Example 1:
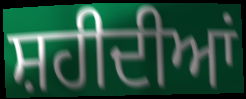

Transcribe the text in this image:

ਸ਼ਹੀਦੀਆਂ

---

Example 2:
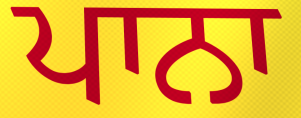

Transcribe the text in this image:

ਪਾਨਾ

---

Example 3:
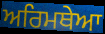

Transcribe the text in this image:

ਅਰਿਮਥੇਆ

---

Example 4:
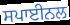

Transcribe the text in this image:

ਸਪਾਈਨਲ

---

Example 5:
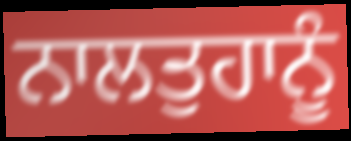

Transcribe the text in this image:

ਨਾਲਤੁਹਾਨੂੰ